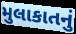
મુલાકાતનું